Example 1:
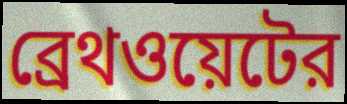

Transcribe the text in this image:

ব্রেথওয়েটের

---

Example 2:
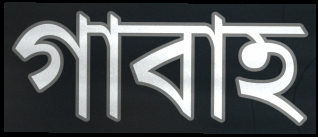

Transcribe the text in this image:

গাবাহ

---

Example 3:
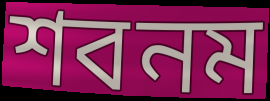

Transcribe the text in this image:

শবনম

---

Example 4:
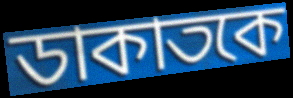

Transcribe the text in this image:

ডাকাতকে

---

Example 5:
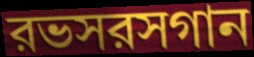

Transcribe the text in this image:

রভসরসগান